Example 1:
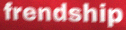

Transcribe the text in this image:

frendship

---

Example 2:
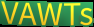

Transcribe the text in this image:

VAWTs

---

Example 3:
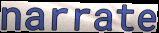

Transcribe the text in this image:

narrate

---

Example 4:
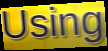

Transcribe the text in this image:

Using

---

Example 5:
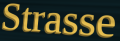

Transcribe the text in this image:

Strasse